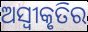
ଅସ୍ୱୀକୃତିର